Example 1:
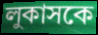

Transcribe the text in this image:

লুকাসকে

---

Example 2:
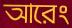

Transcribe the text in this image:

আরেং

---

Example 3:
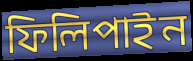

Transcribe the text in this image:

ফিলিপাইন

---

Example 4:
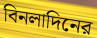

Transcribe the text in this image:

বিনলাদিনের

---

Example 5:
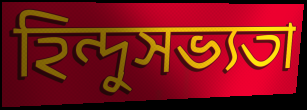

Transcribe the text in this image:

হিন্দুসভ্যতা